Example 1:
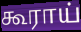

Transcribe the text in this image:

கூராய்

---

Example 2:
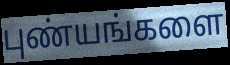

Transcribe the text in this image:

புண்யங்களை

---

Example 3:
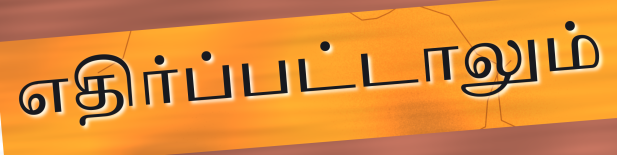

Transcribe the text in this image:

எதிர்ப்பட்டாலும்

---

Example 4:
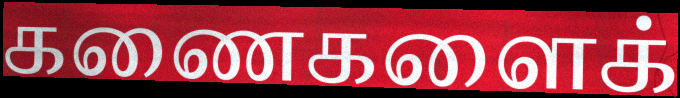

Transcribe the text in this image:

கணைகளைக்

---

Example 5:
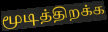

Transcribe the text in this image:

மூடித்திறக்க